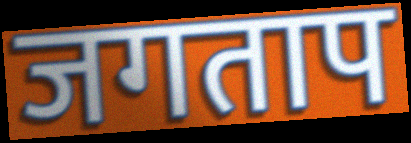
जगताप